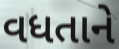
વધતાને